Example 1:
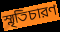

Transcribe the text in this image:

স্মৃতিচারণ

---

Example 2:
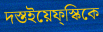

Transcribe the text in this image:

দস্তইয়েফ্স্কিকে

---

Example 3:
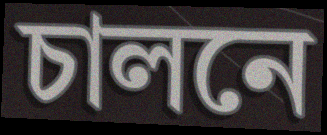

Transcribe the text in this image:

চালনে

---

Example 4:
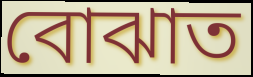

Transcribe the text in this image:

বোঝাত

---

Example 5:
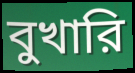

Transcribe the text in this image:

বুখারি